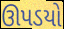
ઊપડયો